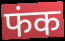
फंक